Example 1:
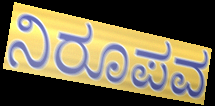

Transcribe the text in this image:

ನಿರೂಪವ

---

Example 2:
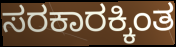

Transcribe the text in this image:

ಸರಕಾರಕ್ಕಿಂತ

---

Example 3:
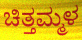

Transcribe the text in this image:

ಚಿತ್ತಮ್ಮಳ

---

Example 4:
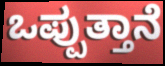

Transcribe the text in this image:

ಒಪ್ಪುತ್ತಾನೆ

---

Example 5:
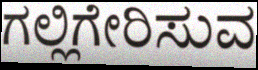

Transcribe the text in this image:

ಗಲ್ಲಿಗೇರಿಸುವ